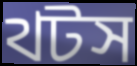
থটস